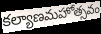
కల్యాణమహోత్సవం